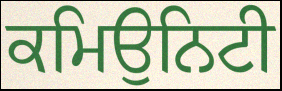
ਕਮਿਉਨਿਟੀ